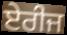
ਏਰੀਜ